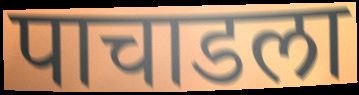
पाचाडला